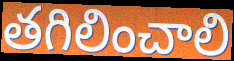
తగిలించాలి